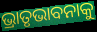
ଭ୍ରାତୃଭାବନାକୁ